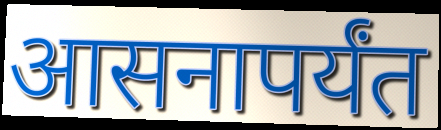
आसनापर्यंत